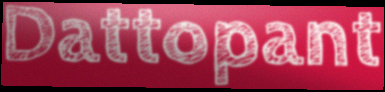
Dattopant